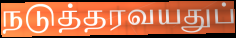
நடுத்தரவயதுப்